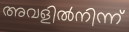
അവളിൽനിന്ന്